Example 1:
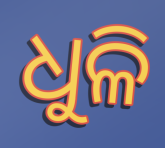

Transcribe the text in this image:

ଧୁଳି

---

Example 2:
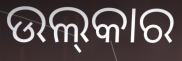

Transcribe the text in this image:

ଉଲ୍‍କାର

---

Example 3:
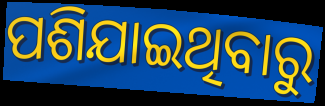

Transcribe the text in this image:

ପଶିଯାଇଥିବାରୁ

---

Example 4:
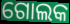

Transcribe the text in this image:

ଗୋଲକ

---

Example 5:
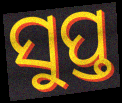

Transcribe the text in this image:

ସୁପ୍ତ